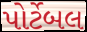
પોર્ટેબલ